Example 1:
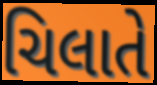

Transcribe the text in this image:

ચિલાતે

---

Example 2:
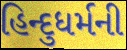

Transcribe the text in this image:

હિન્દુધર્મની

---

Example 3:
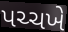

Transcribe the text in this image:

પચ્ચખે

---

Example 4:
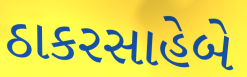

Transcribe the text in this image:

ઠાકરસાહેબે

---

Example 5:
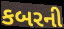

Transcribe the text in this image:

કબરની